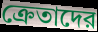
ক্রেতাদের